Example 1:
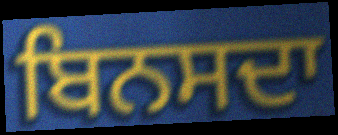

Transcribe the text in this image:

ਬਿਨਸਦਾ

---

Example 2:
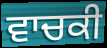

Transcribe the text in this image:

ਵਾਚਕੀ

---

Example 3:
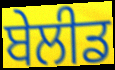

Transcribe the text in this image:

ਬੇਲੀਡ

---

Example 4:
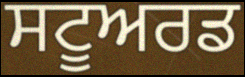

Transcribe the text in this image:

ਸਟੂਅਰਡ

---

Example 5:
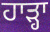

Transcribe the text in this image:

ਹਾੜ੍ਹਾ